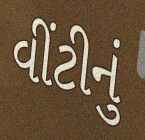
વીંટીનું